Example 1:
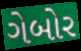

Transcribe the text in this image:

ગેબોર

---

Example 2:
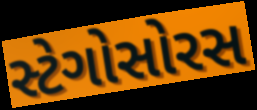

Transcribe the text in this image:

સ્ટેગોસોરસ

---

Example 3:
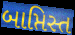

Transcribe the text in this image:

બાપ્તિસ્ત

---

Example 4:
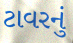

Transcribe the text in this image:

ટાવરનું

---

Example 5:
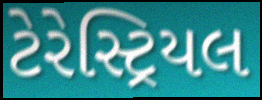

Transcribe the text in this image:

ટેરેસ્ટ્રિયલ